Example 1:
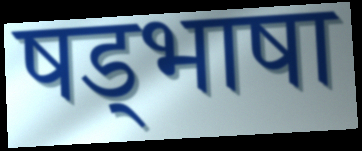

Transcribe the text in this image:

षड्भाषा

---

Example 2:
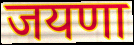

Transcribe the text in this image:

जयणा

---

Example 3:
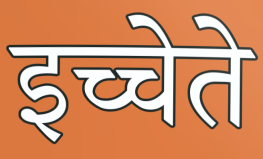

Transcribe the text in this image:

इच्चेते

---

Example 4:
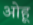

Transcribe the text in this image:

ओहू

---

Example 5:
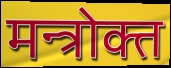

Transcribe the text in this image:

मन्त्रोक्त